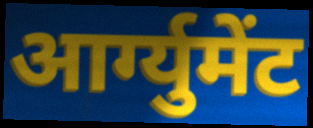
आर्ग्युमेंट